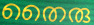
തൈരു